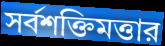
সর্বশক্তিমত্তার